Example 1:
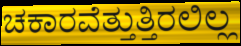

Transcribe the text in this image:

ಚಕಾರವೆತ್ತುತ್ತಿರಲಿಲ್ಲ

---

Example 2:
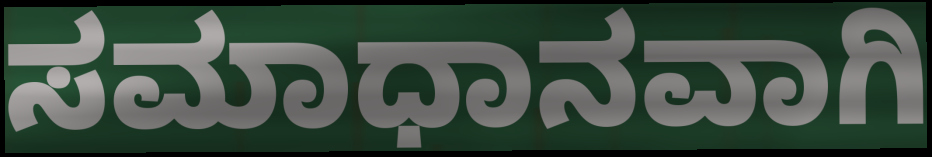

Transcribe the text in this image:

ಸಮಾಧಾನವಾಗಿ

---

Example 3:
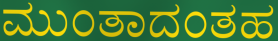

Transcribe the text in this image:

ಮುಂತಾದಂತಹ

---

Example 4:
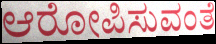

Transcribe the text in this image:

ಆರೋಪಿಸುವಂತೆ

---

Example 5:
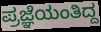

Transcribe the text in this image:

ಪ್ರಜ್ಞೆಯಂತಿದ್ದ